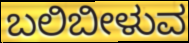
ಬಲಿಬೀಳುವ